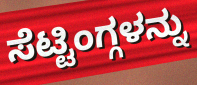
ಸೆಟ್ಟಿಂಗ್ಗಳನ್ನು